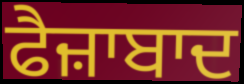
ਫੈਜ਼ਾਬਾਦ